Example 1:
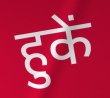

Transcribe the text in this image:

हुकें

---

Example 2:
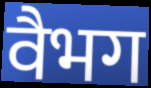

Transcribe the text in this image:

वैभग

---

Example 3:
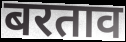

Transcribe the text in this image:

बरताव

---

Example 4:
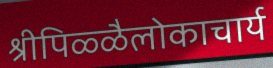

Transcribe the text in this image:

श्रीपिळ्ळैलोकाचार्य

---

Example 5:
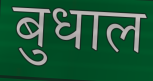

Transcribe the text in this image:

बुधाल